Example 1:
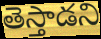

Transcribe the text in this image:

తెస్తాడని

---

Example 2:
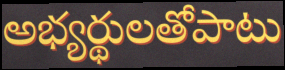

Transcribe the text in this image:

అభ్యర్థులతోపాటు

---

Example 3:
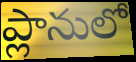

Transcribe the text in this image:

ప్లానులో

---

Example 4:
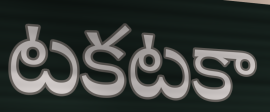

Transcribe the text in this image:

టకటకా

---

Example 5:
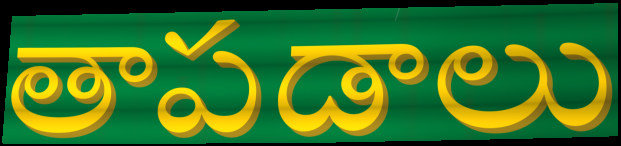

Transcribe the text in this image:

తాపడాలు